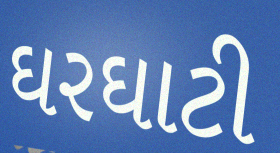
ઘરઘાટી